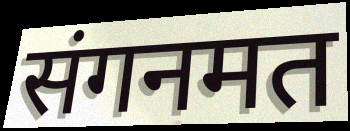
संगनमत